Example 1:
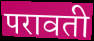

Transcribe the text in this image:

परावती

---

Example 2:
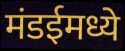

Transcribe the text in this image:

मंडईमध्ये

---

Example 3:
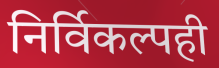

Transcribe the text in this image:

निर्विकल्पही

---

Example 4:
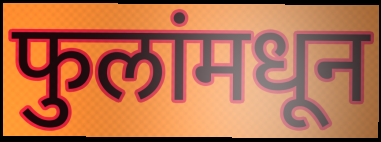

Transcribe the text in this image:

फुलांमधून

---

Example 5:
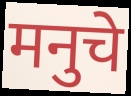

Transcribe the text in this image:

मनुचे